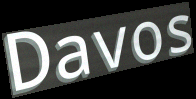
Davos